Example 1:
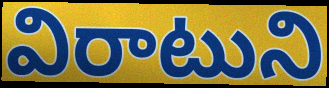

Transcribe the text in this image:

విరాటుని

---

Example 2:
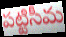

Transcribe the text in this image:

పట్టిసీమ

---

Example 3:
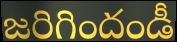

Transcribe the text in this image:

జరిగిందండీ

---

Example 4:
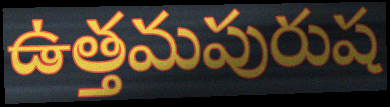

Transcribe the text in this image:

ఉత్తమపురుష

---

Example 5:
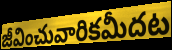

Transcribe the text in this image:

జీవించువారికమీదట